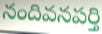
నందివనపర్తి